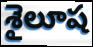
శైలూష